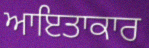
ਆਇਤਾਕਾਰ